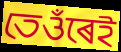
তেওঁৰেই